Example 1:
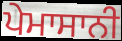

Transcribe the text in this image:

ਪੇਮਾਸਾਨੀ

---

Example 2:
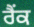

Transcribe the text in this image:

ਰੈੰਕ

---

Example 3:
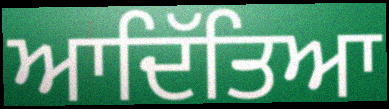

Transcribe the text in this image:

ਆਦਿੱਤਿਆ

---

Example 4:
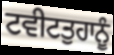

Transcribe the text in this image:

ਟਵੀਟਤੁਹਾਨੂੰ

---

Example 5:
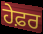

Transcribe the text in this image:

ਹੇਫ਼ਰ